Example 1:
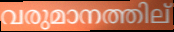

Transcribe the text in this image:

വരുമാനത്തില്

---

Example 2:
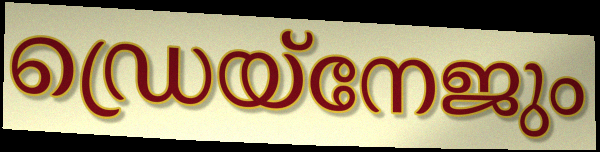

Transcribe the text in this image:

ഡ്രെയ്നേജും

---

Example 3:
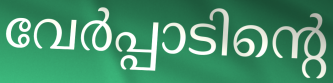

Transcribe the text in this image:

വേർപ്പാടിന്റെ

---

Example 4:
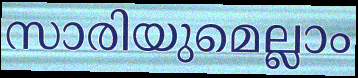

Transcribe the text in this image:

സാരിയുമെല്ലാം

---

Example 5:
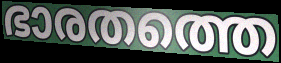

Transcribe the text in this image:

ഭാരതത്തെ